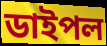
ডাইপল